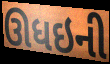
ઊધઇની